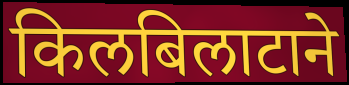
किलबिलाटाने